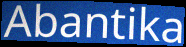
Abantika